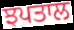
ਝਪਤਾਲ